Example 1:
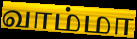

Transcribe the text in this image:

வாம்மா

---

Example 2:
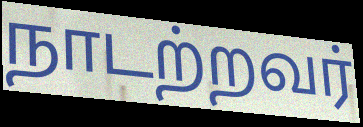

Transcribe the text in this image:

நாடற்றவர்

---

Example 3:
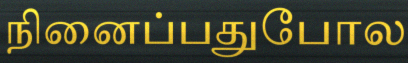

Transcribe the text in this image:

நினைப்பதுபோல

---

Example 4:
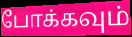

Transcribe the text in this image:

போக்கவும்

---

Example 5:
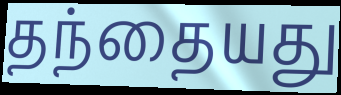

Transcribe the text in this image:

தந்தையது